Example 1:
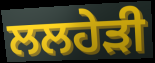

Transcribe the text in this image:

ਲਲਹੇੜੀ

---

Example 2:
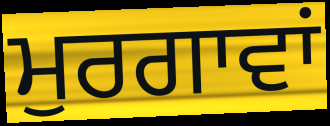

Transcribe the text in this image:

ਮੁਰਗਾਵਾਂ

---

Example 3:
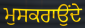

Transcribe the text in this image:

ਮੁਸਕਰਾਉਂਦੇ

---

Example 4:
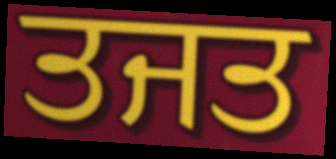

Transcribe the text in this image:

ਤਜਤ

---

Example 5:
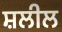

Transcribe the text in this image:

ਸ਼ਲੀਲ